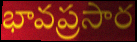
భావప్రసార